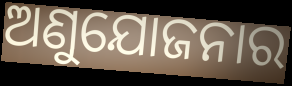
ଅଣୁଯୋଜନାର